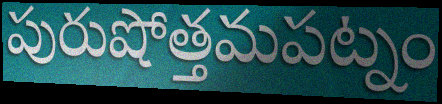
పురుషోత్తమపట్నం